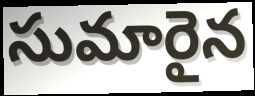
సుమారైన